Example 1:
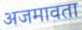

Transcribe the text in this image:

अजमावता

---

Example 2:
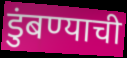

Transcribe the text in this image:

डुंबण्याची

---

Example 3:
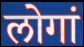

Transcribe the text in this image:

लोगां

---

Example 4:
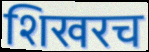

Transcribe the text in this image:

शिखरच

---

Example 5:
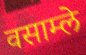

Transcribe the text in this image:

वसाम्ले